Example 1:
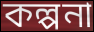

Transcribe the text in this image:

কল্পনা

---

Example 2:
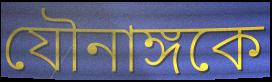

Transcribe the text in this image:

যৌনাঙ্গকে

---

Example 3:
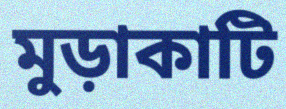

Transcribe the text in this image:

মুড়াকাটি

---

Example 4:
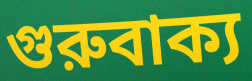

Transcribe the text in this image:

গুরুবাক্য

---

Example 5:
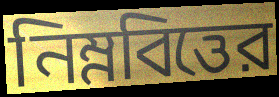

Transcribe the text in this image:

নিম্নবিত্তের